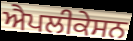
ਐਪਲੀਕੇਸਨ